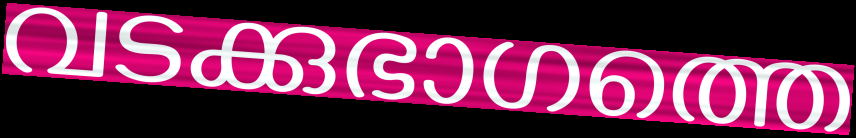
വടക്കുഭാഗത്തെ